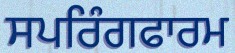
ਸਪਰਿੰਗਫਾਰਮ